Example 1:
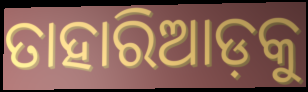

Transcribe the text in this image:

ତାହାରିଆଡ଼କୁ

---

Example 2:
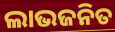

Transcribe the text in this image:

ଲାଭଜନିତ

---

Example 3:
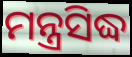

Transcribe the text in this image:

ମନ୍ତ୍ରସିଦ୍ଧ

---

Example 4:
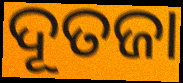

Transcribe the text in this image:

ଦୂତଜା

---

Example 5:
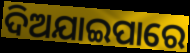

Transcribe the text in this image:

ଦିଅଯାଇପାରେ